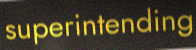
superintending